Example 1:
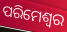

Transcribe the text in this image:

ପରିମେଶ୍ୱର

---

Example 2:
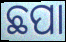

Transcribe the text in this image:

ଛପା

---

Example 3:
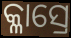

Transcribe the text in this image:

କ୍ଳାସ୍ରେ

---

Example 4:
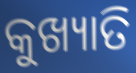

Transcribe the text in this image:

କୁଖ୍ୟାତି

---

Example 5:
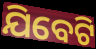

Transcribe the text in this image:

ଯିବେଟି